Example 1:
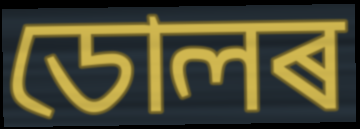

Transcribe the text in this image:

ডোলৰ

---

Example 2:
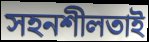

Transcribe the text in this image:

সহনশীলতাই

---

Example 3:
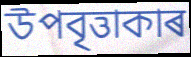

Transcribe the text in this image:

উপবৃত্তাকাৰ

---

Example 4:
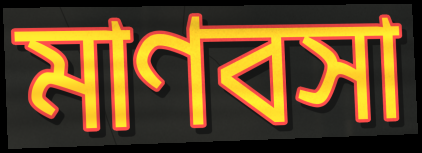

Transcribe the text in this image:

মাণবসা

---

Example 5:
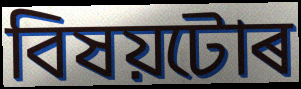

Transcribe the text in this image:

বিষয়টোৰ